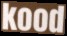
kood